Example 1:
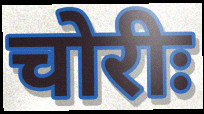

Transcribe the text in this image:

चोरीः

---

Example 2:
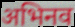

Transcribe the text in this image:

अभिनव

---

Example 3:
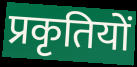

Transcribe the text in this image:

प्रकृतियों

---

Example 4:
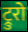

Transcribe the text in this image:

ट्रुरो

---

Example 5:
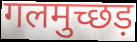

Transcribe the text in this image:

गलमुच्छड़